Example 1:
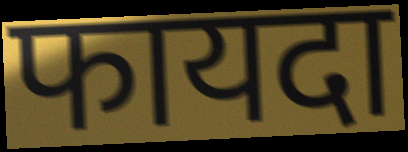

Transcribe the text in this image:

फायदा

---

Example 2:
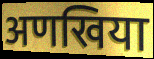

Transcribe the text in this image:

अणखिया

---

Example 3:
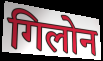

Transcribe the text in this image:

गिलोन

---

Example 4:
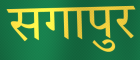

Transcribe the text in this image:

सगापुर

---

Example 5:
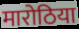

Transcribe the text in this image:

मारोठिया